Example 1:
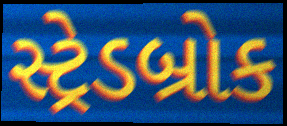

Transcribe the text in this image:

સ્ટ્રેડબ્રોક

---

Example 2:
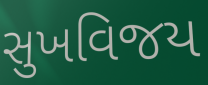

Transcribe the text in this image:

સુખવિજય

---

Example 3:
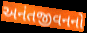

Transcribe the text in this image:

અનંતજીવનનો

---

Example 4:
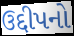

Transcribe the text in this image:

ઉદ્દીપનો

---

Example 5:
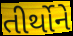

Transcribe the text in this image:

તીર્થોને